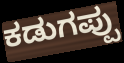
ಕಡುಗಪ್ಪು